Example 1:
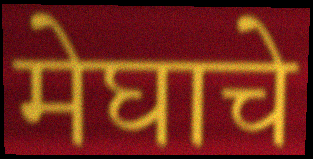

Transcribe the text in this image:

मेघाचे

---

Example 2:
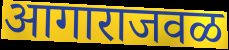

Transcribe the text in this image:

आगाराजवळ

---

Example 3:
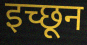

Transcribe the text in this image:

इच्छून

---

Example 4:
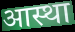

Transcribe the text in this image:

आस्था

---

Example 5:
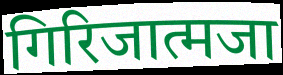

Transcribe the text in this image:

गिरिजात्मजा